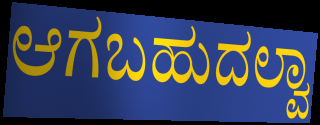
ಆಗಬಹುದಲ್ವಾ